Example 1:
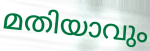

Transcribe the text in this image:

മതിയാവും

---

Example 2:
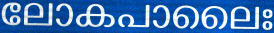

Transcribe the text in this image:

ലോകപാലൈഃ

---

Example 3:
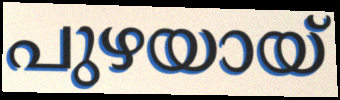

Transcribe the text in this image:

പുഴയായ്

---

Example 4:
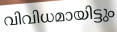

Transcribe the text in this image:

വിവിധമായിട്ടും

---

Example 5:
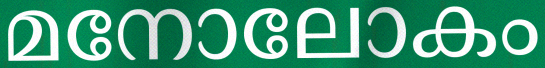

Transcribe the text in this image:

മനോലോകം